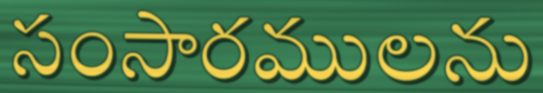
సంసారములను